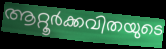
ആറ്റൂർക്കവിതയുടെ